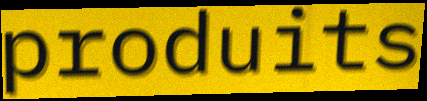
produits